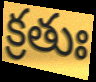
క్రతుః